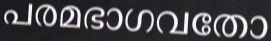
പരമഭാഗവതോ